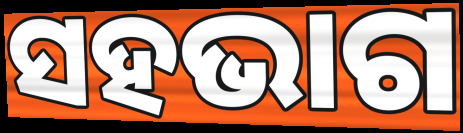
ସହଭାଗ